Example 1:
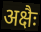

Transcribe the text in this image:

अक्षैः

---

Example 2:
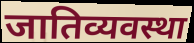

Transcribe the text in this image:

जातिव्यवस्था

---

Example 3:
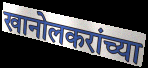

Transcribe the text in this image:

खानोलकरांच्या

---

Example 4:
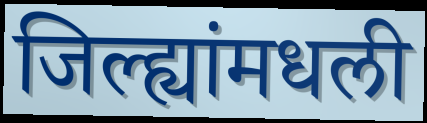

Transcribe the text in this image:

जिल्ह्यांमधली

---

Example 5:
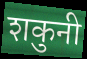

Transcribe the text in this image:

शकुनी